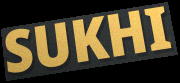
SUKHI